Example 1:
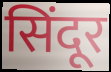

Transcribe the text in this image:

सिंदूर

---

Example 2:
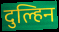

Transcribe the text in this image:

दुल्हिन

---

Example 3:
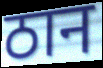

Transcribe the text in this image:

ठान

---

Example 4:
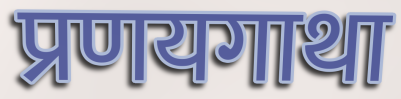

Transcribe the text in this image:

प्रणयगाथा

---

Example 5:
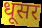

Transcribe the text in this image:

धूसर